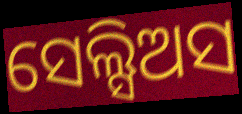
ସେଲ୍ସିଅସ